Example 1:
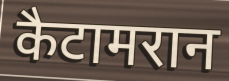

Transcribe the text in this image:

कैटामरान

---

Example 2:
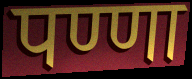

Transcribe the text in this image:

पण्णा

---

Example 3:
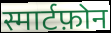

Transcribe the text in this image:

स्‍मार्टफ़ोन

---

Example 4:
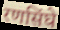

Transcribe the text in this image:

रणसिंघे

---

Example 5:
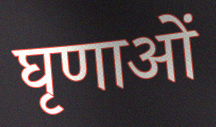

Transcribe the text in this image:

घृणाओं